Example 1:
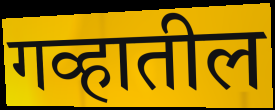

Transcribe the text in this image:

गव्हातील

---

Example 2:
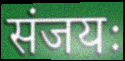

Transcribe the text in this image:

संजयः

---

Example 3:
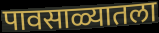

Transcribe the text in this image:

पावसाळ्यातला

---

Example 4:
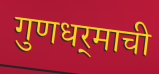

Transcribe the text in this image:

गुणधर्माची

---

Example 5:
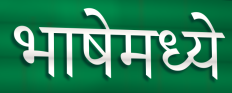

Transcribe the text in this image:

भाषेमध्ये